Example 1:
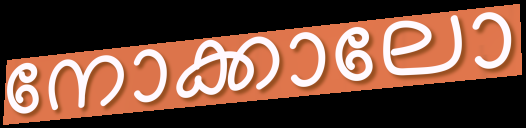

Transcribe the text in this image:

നോക്കാലോ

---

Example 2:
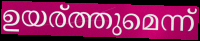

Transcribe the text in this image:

ഉയര്ത്തുമെന്ന്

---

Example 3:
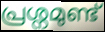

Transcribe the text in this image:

പ്രശ്നമുണ്ട്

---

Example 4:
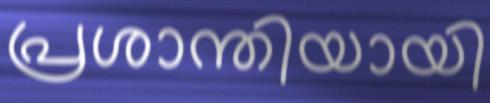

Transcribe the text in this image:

പ്രശാന്തിയായി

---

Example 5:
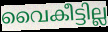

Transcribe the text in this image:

വൈകീട്ടില്ല